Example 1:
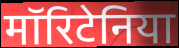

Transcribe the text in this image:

मॉरिटेनिया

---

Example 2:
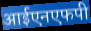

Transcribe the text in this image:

आईएनएफपी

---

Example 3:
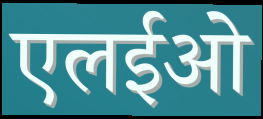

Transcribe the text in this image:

एलईओ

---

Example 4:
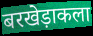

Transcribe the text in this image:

बरखेड़ाकला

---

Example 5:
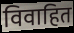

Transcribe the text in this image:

विवाहित